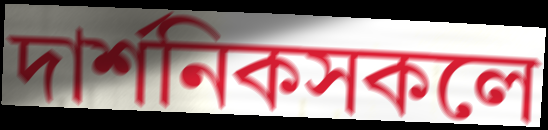
দাৰ্শনিকসকলে